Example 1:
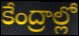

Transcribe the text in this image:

కేంద్రాల్లో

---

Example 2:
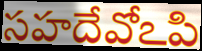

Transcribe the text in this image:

సహదేవోఽపి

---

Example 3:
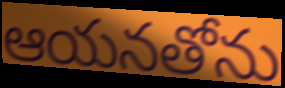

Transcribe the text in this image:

ఆయనతోను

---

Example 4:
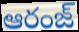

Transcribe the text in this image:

ఆరంజ్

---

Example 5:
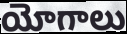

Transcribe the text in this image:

యోగాలు